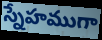
స్నేహముగా